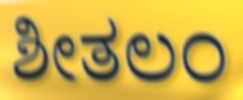
ಶೀತಲಂ